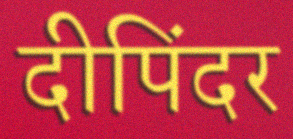
दीपिंदर